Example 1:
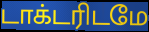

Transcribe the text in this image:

டாக்டரிடமே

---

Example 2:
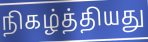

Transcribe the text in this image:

நிகழ்த்தியது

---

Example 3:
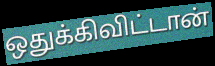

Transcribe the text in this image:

ஒதுக்கிவிட்டான்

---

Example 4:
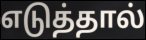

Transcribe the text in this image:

எடுத்தால்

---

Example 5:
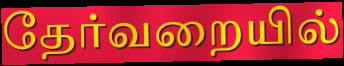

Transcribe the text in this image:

தேர்வறையில்